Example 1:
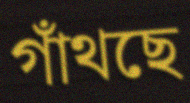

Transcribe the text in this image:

গাঁথছে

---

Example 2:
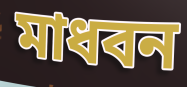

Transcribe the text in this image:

মাধবন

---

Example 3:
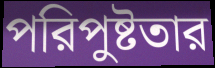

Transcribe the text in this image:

পরিপুষ্টতার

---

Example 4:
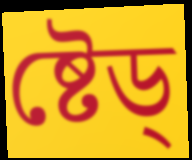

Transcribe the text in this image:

ষ্টেড্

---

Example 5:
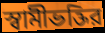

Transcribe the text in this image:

স্বামীভক্তির